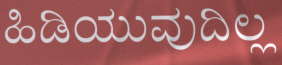
ಹಿಡಿಯುವುದಿಲ್ಲ